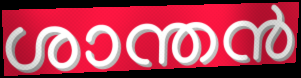
ശാന്തൻ